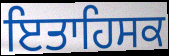
ਇਤਾਹਿਸਕ